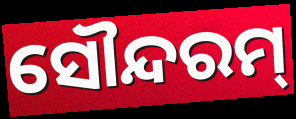
ସୌନ୍ଦରମ୍